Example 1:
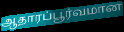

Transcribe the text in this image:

ஆதாரப்பூர்வமான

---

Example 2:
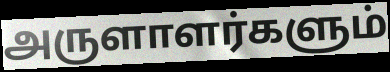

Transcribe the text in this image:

அருளாளர்களும்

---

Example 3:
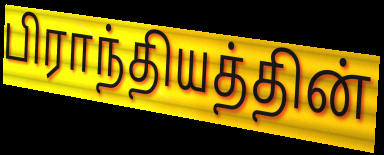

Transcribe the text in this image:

பிராந்தியத்தின்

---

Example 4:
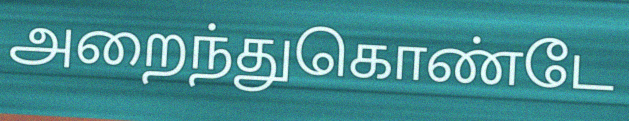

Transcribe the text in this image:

அறைந்துகொண்டே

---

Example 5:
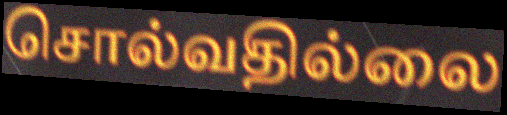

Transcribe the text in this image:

சொல்வதில்லை